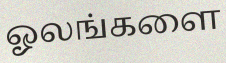
ஓலங்களை